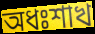
অধঃশাখ